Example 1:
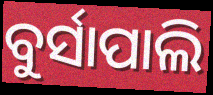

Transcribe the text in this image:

ବୁର୍ସାପାଲି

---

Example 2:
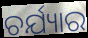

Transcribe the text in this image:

ଚର୍ଯ୍ୟାର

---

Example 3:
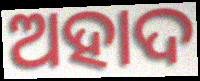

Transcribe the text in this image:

ଅହାଦ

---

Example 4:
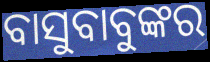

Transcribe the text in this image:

ବାସୁବାବୁଙ୍କର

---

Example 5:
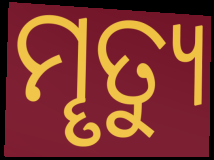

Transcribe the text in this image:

ମୄତ୍ୟୁ